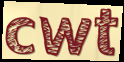
cwt